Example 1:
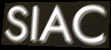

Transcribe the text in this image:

SIAC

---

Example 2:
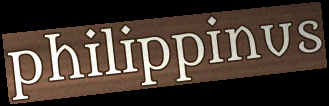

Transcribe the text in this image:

philippinus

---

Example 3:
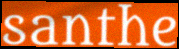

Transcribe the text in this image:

santhe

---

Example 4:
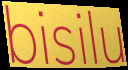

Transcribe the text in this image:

bisilu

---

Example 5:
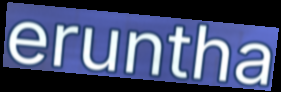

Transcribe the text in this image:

eruntha